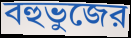
বহুভুজের